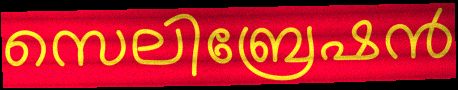
സെലിബ്രേഷൻ